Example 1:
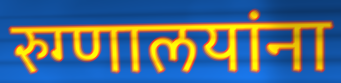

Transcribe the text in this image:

रुग्णालयांना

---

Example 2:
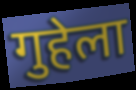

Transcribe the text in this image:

गुहेला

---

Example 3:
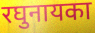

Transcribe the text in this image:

रघुनायका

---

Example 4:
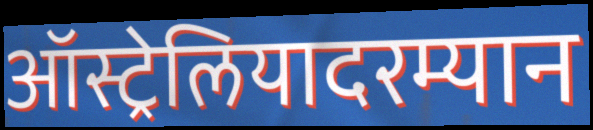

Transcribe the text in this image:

ऑस्ट्रेलियादरम्यान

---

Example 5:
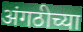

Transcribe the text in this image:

अंगठीच्या